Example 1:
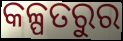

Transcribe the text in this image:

କଳ୍ପତରୁର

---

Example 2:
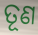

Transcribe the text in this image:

ତୂଣ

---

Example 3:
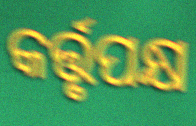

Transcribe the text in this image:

କର୍ତ୍ତୃପକ୍ଷ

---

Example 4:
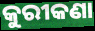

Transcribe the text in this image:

କୁରୀକଣା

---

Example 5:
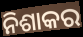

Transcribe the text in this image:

ନିଶାକର